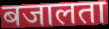
बजालता